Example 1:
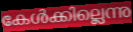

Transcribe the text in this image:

കേൾക്കില്ലെന്നു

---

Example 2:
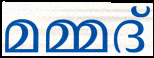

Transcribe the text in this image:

മമ്മദ്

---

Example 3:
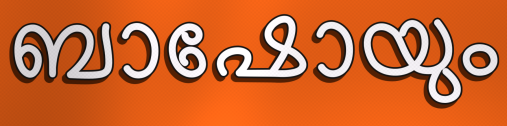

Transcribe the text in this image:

ബാഷോയും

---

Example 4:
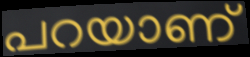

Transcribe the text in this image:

പറയാണ്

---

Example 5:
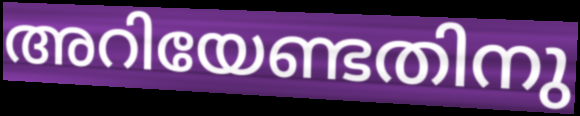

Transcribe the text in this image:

അറിയേണ്ടതിനു